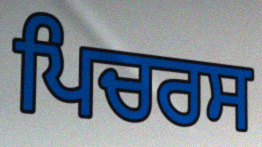
ਪਿਚਰਸ